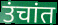
उंचांत